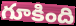
గూకింది